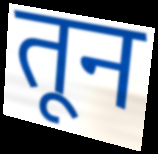
तून